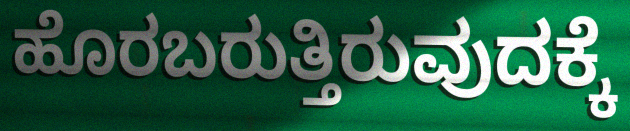
ಹೊರಬರುತ್ತಿರುವುದಕ್ಕೆ